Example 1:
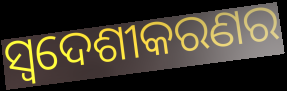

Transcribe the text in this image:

ସ୍ୱଦେଶୀକରଣର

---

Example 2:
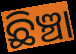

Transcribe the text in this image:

ଛିଞ୍ଚା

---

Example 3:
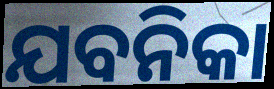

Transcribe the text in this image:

ଯବନିକା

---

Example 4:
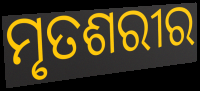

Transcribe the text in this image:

ମୃତଶରୀର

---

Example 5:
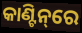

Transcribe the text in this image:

କାଣ୍ଟିନ୍‌ରେ